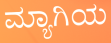
ಮ್ಯಾಗಿಯ